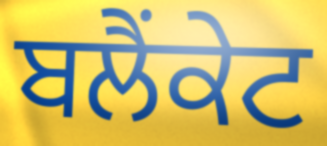
ਬਲੈਂਕੇਟ